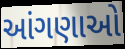
આંગણાઓ